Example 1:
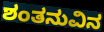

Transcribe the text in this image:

ಶಂತನುವಿನ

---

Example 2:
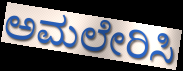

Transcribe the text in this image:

ಅಮಲೇರಿಸಿ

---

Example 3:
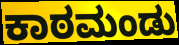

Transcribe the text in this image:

ಕಾಠಮಂಡು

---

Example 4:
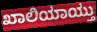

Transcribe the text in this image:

ಖಾಲಿಯಾಯ್ತು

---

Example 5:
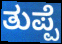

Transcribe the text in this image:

ತುಪ್ಪೆ